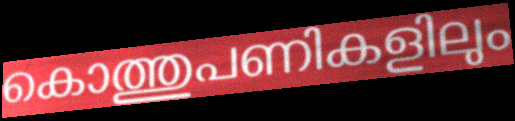
കൊത്തുപണികളിലും